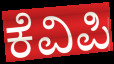
ಕೆವಿಪಿ